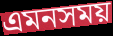
এমনসময়